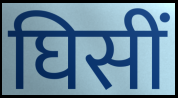
घिसीं